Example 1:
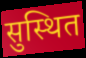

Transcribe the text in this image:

सुस्थित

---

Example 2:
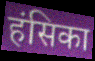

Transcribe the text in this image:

हंसिका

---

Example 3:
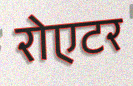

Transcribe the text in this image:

रोएटर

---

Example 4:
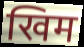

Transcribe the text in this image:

खिम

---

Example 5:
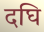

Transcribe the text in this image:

दघि